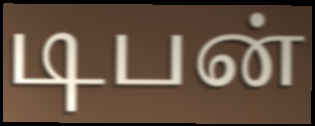
டிபன்